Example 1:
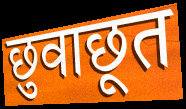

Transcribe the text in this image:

छुवाछूत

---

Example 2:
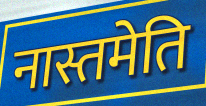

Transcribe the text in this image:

नास्तमेति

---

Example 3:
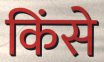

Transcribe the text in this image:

किंसे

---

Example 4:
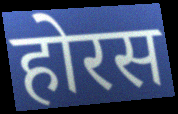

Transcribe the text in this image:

होरस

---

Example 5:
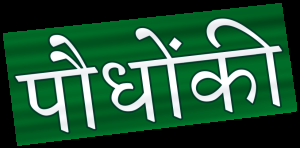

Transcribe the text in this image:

पौधोंकी